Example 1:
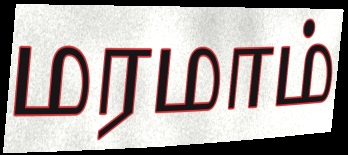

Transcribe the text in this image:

மரமாம்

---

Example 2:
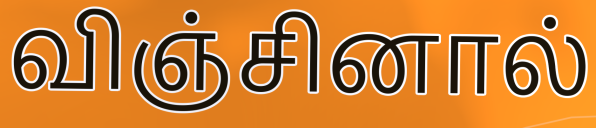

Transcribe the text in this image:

விஞ்சினால்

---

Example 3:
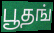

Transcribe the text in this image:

பூதங்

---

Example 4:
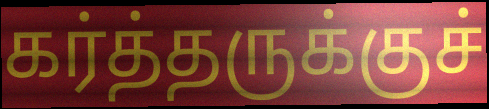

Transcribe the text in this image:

கர்த்தருக்குச்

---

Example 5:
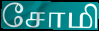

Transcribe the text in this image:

சோமி